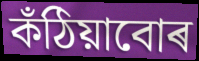
কঁঠিয়াবোৰ